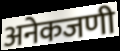
अनेकजणी